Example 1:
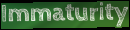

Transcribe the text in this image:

Immaturity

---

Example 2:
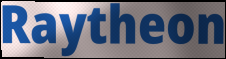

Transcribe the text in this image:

Raytheon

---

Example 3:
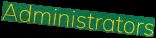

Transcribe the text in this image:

Administrators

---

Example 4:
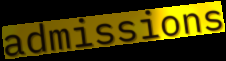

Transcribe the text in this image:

admissions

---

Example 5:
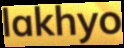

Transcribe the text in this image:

lakhyo